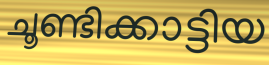
ചൂണ്ടിക്കാട്ടിയ